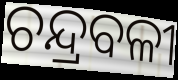
ଚନ୍ଦ୍ରବଳୀ